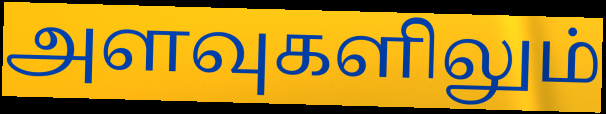
அளவுகளிலும்